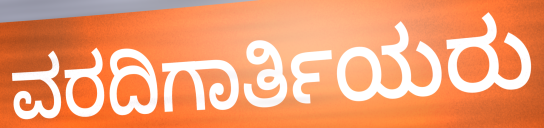
ವರದಿಗಾರ್ತಿಯರು